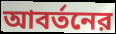
আবর্তনের